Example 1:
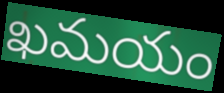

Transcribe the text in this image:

ఖమయం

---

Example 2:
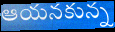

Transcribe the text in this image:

ఆయనకున్న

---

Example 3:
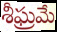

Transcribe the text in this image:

శీఘ్రమే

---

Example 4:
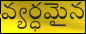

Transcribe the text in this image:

వ్యర్ధమైన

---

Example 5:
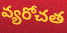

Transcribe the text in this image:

వ్యరోచత